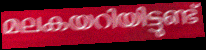
മലകയറിയിട്ടുണ്ട്